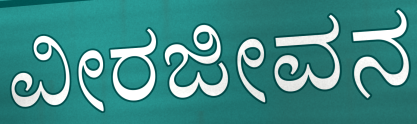
ವೀರಜೀವನ